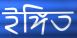
ইঙ্গিত